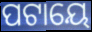
ପଟାୟେ